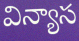
విన్యాస